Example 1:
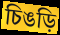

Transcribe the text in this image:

চিঙড়ি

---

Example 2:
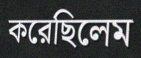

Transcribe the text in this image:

করেছিলেম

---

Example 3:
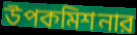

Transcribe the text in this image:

উপকমিশনার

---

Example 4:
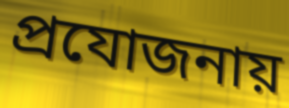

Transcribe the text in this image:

প্রযোজনায়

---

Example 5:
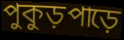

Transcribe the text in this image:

পুকুড়পাড়ে